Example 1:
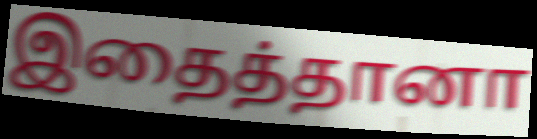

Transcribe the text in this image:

இதைத்தானா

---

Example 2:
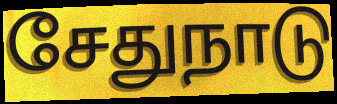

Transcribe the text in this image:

சேதுநாடு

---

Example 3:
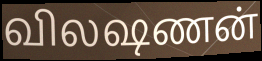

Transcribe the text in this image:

விலஷணன்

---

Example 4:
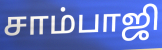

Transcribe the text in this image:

சாம்பாஜி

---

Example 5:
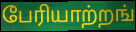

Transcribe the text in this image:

பேரியாற்றங்